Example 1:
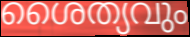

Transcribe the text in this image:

ശൈത്യവും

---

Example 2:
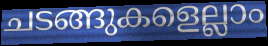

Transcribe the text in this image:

ചടങ്ങുകളെല്ലാം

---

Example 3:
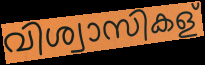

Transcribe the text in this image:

വിശ്വാസികള്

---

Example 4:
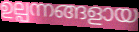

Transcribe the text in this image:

ഉല്പന്നങ്ങളായ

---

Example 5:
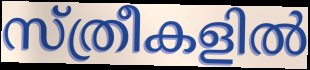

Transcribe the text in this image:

സ്ത്രീകളിൽ